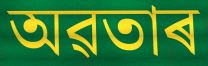
অৱতাৰ